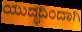
ಯುದ್ಧದಿಂದಾಗಿ